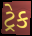
ટ્રેક